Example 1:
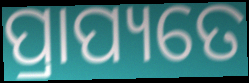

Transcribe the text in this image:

ପ୍ରାପ୍ୟତେ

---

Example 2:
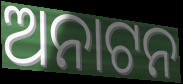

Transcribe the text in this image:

ଅନାଟନ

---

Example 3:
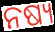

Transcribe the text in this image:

ନଷ୍ଯ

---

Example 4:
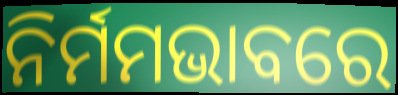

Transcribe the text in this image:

ନିର୍ମମଭାବରେ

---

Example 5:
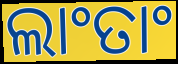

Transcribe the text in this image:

ଲାଂତାଂ